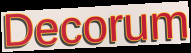
Decorum